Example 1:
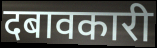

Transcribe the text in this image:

दबावकारी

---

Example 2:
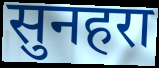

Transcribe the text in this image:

सुनहरा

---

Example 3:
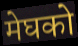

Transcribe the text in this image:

मेघको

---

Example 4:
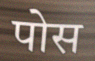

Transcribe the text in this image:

पोस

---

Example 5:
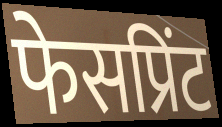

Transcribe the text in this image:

फेसप्रिंट